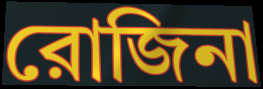
রোজিনা